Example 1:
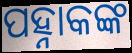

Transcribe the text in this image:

ପହ୍ନାକଙ୍କ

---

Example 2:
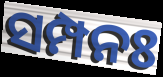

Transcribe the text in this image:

ସମ୍ପନଃ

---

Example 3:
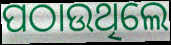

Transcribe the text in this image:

ପଠାଉଥିଲେ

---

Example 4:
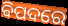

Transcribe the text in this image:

ଵିପଦରେ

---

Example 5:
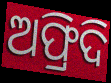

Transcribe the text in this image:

ଅଫ୍ରିଦି